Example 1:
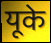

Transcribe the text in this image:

यूके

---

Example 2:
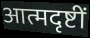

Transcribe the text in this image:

आत्मदृष्टीं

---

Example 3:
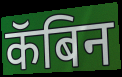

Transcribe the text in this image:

कॅबिन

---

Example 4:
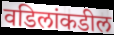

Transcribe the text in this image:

वडिलांकडील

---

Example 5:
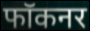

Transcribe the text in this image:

फॉकनर